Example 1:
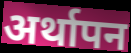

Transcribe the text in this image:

अर्थापन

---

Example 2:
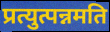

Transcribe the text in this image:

प्रत्युत्पन्नमति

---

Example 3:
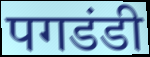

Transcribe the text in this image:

पगडंडी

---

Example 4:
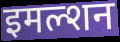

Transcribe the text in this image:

इमल्शन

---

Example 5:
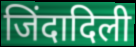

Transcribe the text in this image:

जिंदादिली